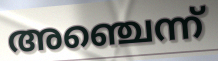
അഞ്ചെന്ന്